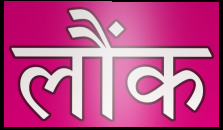
लौंक